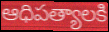
ఆధిపత్యాలకి